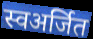
स्वअर्जित